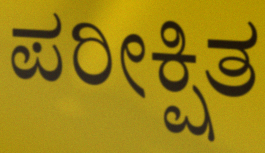
ಪರೀಕ್ಷಿತ